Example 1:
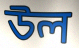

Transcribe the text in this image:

উল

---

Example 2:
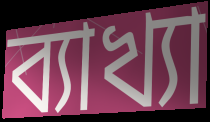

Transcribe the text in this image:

ব্যাখ্যা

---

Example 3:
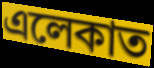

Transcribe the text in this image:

এলেকাত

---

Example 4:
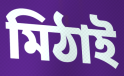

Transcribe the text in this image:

মিঠাই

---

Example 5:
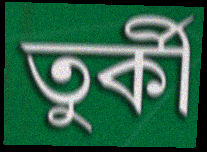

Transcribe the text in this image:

তুৰ্কী